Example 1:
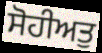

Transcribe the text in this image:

ਸੋਹੀਅਤੁ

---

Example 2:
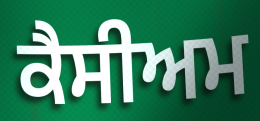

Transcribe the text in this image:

ਕੈਸੀਅਮ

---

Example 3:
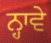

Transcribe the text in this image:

ਨ੍ਹਾਵੇ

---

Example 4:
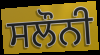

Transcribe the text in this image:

ਸਲੌਨੀ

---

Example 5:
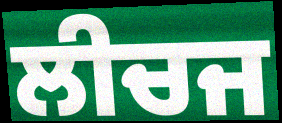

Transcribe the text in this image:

ਲੀਚਜ